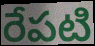
రేపటి